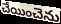
చేయించెను